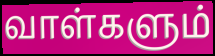
வாள்களும்